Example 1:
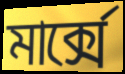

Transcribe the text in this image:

মাৰ্ক্সে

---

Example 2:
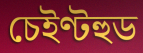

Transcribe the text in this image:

চেইণ্টহুড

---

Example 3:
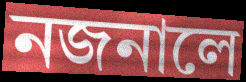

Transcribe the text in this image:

নজনালে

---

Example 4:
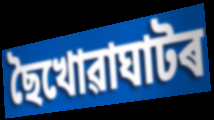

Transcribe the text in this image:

ছৈখোৱাঘাটৰ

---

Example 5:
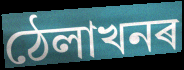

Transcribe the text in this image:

ঠেলাখনৰ